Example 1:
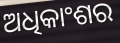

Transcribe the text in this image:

ଅଧିକାଂଶର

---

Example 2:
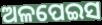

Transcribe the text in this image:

ଅଳପେଇସ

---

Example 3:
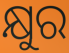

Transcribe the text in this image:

କ୍ଷୁର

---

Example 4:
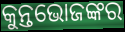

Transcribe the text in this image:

କୁନ୍ତଭୋଜଙ୍କର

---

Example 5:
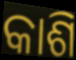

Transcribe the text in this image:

କାଶି